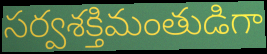
సర్వశక్తిమంతుడిగా